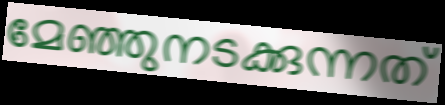
മേഞ്ഞുനടക്കുന്നത്